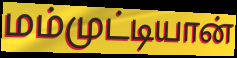
மம்முட்டியான்